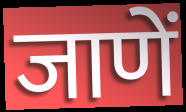
जाणें